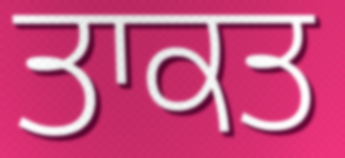
ਤਾਕਤ